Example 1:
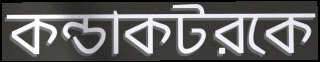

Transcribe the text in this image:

কন্ডাকটরকে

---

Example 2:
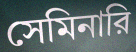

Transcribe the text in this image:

সেমিনারি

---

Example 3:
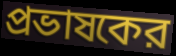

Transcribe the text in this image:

প্রভাষকের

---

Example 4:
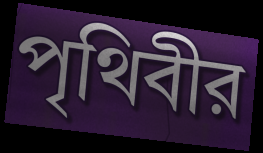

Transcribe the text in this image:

পৃথিবীর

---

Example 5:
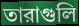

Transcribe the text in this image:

তারাগুলি